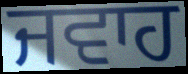
ਜਵਾਹ